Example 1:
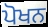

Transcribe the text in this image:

ਪੋਖਨ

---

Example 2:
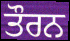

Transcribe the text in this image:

ਤੌਰਨ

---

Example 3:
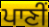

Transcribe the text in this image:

ਪਾਣੀਂ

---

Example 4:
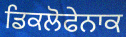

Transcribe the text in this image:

ਡਿਕਲੋਫੇਨਾਕ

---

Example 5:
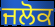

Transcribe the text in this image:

ਜਲੋਕ